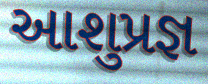
આશુપ્રજ્ઞ